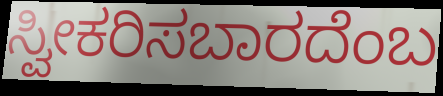
ಸ್ವೀಕರಿಸಬಾರದೆಂಬ